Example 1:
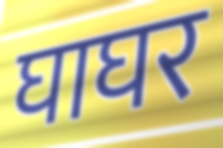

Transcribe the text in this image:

घाघर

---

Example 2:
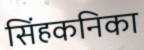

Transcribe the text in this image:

सिंहकनिका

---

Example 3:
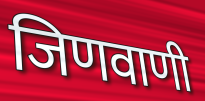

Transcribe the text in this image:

जिणवाणी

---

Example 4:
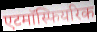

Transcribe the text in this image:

एटमॉस्फियरिक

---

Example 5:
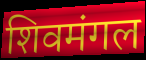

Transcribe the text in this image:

शिवमंगल